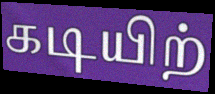
கடியிற்